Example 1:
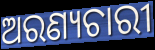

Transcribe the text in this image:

ଅରଣ୍ୟଚାରୀ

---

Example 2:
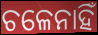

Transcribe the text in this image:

ଚଳେନାହିଁ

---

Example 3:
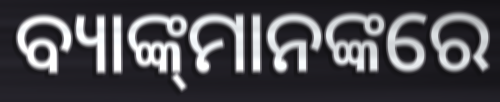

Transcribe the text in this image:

ବ୍ୟାଙ୍କ୍‌ମାନଙ୍କରେ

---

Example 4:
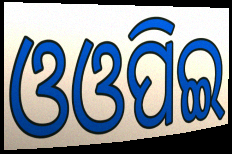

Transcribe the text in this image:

ଓଓପିଇ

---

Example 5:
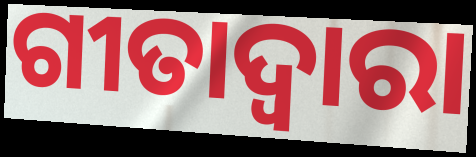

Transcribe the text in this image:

ଗୀତାଦ୍ଵାରା